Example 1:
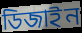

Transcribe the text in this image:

ডিজাইন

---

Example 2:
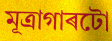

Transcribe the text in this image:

মূত্ৰাগাৰটো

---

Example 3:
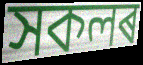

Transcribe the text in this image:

সকলৰ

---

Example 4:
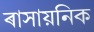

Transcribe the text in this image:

ৰাসায়নিক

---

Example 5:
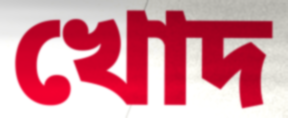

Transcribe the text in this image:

খোদ